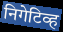
निगेटिव्ह